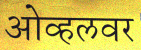
ओव्हलवर